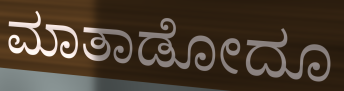
ಮಾತಾಡೋದೂ